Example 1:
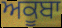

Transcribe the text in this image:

ਅਕੂਬਾ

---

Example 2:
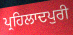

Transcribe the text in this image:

ਪ੍ਰਹਿਲਾਦਪੁਰੀ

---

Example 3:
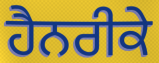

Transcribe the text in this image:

ਹੈਨਰੀਕੇ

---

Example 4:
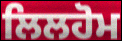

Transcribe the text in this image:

ਲਿਲਹੋਮ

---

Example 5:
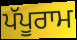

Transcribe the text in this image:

ਪੱਪੂਰਾਮ